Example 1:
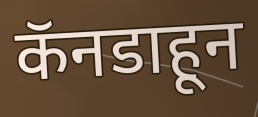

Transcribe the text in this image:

कॅनडाहून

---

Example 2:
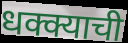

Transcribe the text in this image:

धक्क्याची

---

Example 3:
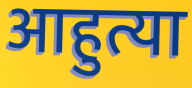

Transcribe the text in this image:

आहुत्या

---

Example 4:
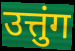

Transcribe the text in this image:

उत्तुंग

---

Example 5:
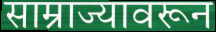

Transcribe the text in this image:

साम्राज्यावरून